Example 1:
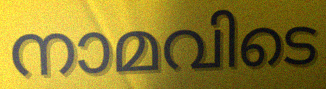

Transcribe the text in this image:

നാമവിടെ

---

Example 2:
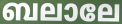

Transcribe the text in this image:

ബലാലേ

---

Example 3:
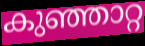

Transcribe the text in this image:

കുഞ്ഞാറ്റ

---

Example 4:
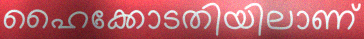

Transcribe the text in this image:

ഹൈക്കോടതിയിലാണ്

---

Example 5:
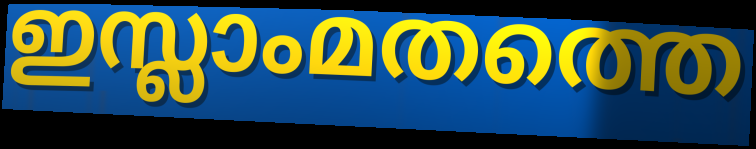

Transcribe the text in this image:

ഇസ്ലാംമതത്തെ